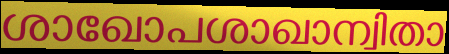
ശാഖോപശാഖാന്വിതാ